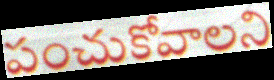
పంచుకోవాలని